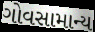
ગોવસામાન્ય